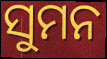
ସୁମନ